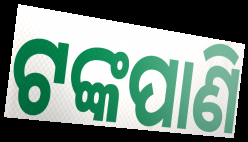
ଟଙ୍କପାଣି